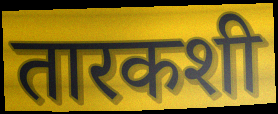
तारकशी